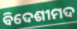
ବିଦେଶୀମଦ